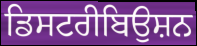
ਡਿਸਟਰੀਬਿਉਸ਼ਨ